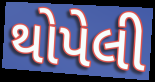
થોપેલી